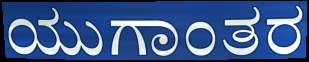
ಯುಗಾಂತರ